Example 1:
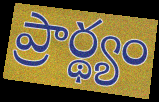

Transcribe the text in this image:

ప్రార్థ్యం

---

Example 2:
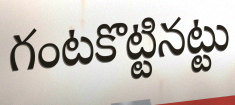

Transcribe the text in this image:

గంటకొట్టినట్టు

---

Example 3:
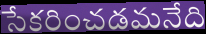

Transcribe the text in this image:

సేకరించడమనేది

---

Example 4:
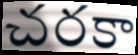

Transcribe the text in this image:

చరకా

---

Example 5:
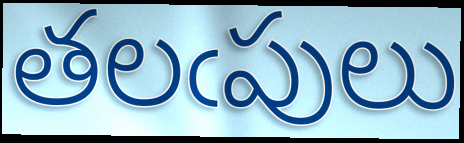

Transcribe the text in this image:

తలఁపులు